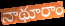
నాథూరాం